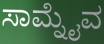
ಸಾಮ್ನೈವ